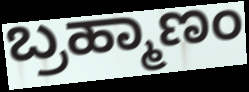
ಬ್ರಹ್ಮಾಣಂ